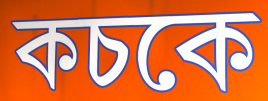
কচকে